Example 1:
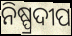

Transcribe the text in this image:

ନିଷ୍ପ୍ରଦୀପ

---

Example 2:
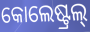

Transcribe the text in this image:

କୋଲେଷ୍ଟ୍ରଲ୍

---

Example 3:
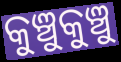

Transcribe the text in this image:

କୁଞ୍ଚୁକୁଞ୍ଚୁ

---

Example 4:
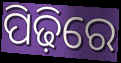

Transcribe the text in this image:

ପିଢ଼ିରେ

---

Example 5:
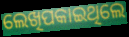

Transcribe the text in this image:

ଲେଖିପକାଇଥିଲେ